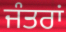
ਜੰਤਰਾਂ